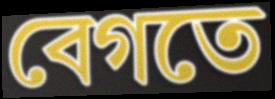
বেগতে